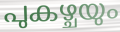
പുകഴ്ചയും